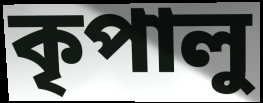
কৃপালু